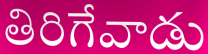
తిరిగేవాడు